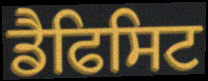
ਡੈਫਿਸਿਟ